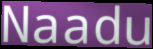
Naadu